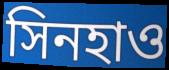
সিনহাও